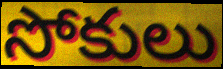
సోకులు